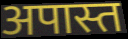
अपास्‍त